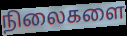
நிலைகளை